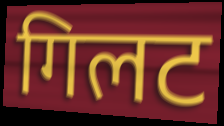
गिलट